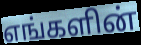
எங்களின்